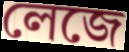
লেজে